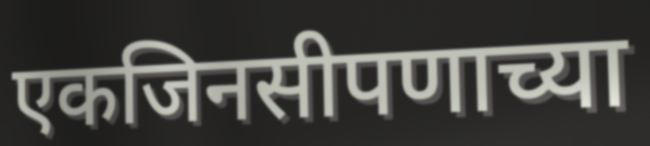
एकजिनसीपणाच्या